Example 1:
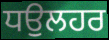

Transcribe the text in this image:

ਧਉਲਹਰ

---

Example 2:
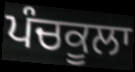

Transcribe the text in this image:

ਪੰਚਕੂਲਾ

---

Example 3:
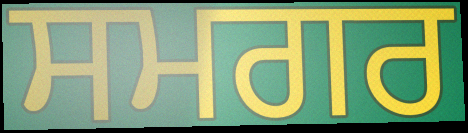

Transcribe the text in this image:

ਸਮਗਰ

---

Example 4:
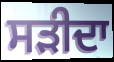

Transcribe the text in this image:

ਸੜੀਦਾ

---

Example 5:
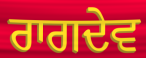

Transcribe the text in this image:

ਰਾਗਦੇਵ